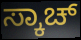
ಸ್ಕಾಚ್